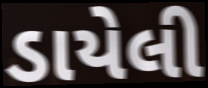
ડાયેલી